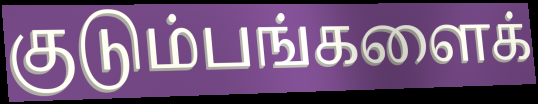
குடும்பங்களைக்